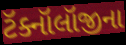
ટૅક્નૉલૉજીના